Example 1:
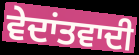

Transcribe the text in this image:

ਵੇਦਾਂਤਵਾਦੀ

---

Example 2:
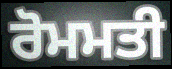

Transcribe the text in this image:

ਰੋਮਮਤੀ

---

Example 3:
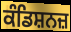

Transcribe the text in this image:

ਕੰਡਿਸ਼ਨਜ਼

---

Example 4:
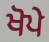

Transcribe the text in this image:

ਖੋਪੇ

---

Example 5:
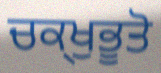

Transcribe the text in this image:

ਚਕ੍ਖੁਭੂਤੋ